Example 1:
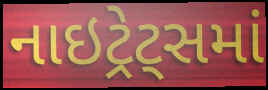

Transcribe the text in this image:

નાઇટ્રેટ્સમાં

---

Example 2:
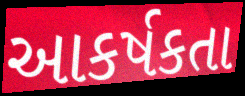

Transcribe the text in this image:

આકર્ષકતા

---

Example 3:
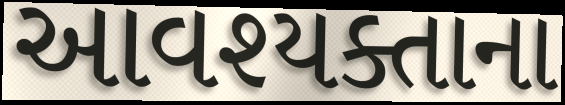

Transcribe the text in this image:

આવશ્યક્તાના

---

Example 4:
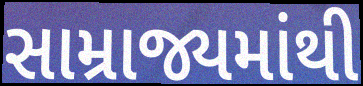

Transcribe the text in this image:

સામ્રાજ્યમાંથી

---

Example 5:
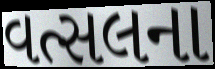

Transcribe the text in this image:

વત્સલના